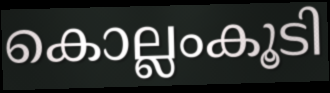
കൊല്ലംകൂടി